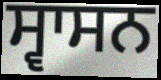
ਸ੍ਵਾਸਨ